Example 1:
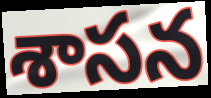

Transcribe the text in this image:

శాసన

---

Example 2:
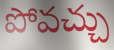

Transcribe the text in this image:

పోవచ్చు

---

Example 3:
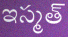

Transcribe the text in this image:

ఇస్మత్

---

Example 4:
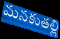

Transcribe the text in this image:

మనకుతల్లి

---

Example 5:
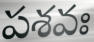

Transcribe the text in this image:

పశవః